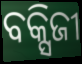
ବକ୍ସିଜୀ